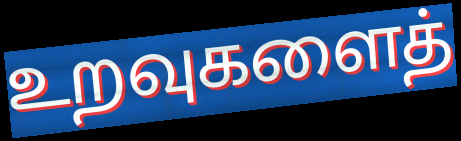
உறவுகளைத்